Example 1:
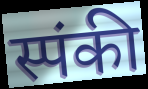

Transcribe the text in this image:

स्पंकी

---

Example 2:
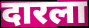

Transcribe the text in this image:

दारला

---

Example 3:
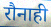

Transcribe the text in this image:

रौनाही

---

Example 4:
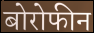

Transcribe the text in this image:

बोरोफीन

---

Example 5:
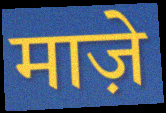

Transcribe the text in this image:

माज़े